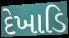
દેખાડિ